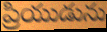
ప్రియుడును